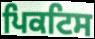
ਪਿਕਟਿਸ